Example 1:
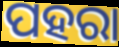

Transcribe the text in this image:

ପହରା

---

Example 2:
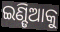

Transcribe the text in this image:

ଇଣ୍ଡିଆକୁ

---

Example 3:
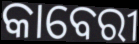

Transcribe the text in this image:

କାବେରୀ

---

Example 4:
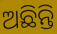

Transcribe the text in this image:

ଅଛିନ୍ତି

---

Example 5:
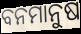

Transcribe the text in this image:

ବନମାନୁଷ